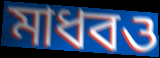
মাধবও